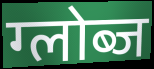
ग्लोब्ज